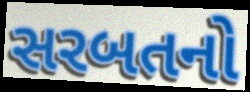
સરબતનો